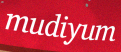
mudiyum